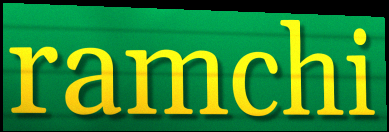
ramchi